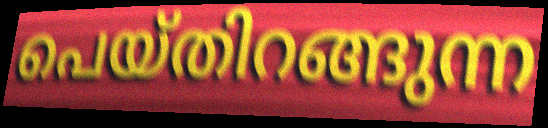
പെയ്തിറങ്ങുന്ന